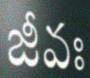
జీవః